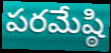
పరమేష్ఠి